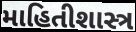
માહિતીશાસ્ત્ર